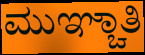
ಮುಞ್ಚಾತಿ